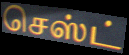
செஸ்ட்